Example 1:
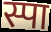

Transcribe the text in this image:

स्पा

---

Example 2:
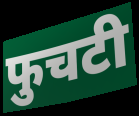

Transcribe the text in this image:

फुचटी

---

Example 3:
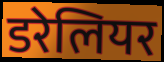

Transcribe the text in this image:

डरेलियर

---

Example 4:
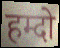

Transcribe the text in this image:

हम्दो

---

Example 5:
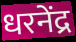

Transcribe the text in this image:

धरनेंद्र